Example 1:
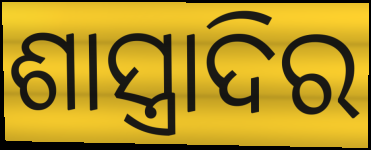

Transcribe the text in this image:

ଶାସ୍ତ୍ରାଦିର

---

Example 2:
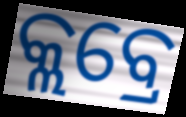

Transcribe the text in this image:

କ୍ଲବ୍ରେ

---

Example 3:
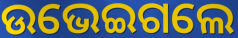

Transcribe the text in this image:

ଉଭେଇଗଲେ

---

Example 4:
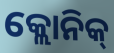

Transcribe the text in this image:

କ୍ଲୋନିକ୍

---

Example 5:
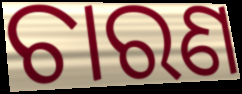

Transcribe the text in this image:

ଚାରଣ